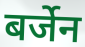
बर्जेन